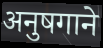
अनुषगाने